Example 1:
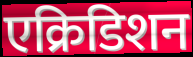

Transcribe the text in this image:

एक्रिडिशन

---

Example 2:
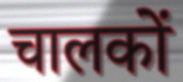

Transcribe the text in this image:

चालकों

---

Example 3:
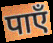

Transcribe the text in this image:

पाएँ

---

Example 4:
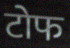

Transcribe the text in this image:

टोफ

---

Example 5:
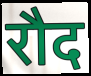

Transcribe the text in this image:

रौद